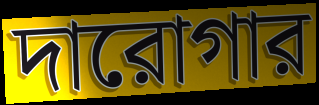
দারোগার